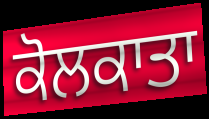
ਕੋਲਕਾਤਾ